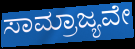
ಸಾಮ್ರಾಜ್ಯವೇ